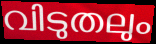
വിടുതലും